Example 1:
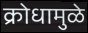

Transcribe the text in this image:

क्रोधामुळे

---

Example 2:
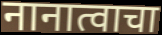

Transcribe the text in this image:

नानात्वाचा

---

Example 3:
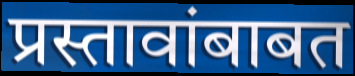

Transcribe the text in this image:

प्रस्तावांबाबत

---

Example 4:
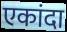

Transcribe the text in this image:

एकांदा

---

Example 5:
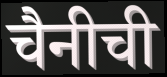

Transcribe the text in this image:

चैनीची